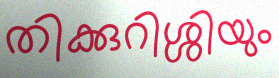
തിക്കുറിശ്ശിയും